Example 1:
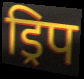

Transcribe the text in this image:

ड्रिप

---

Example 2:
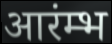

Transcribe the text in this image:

आरंम्भ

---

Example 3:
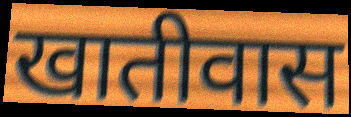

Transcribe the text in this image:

खातीवास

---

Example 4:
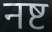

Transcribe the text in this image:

नष्ट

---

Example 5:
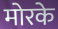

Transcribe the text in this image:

मोरके